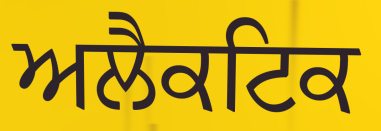
ਅਲੈਕਟਿਕ